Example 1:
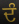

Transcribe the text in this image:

ਦੰ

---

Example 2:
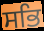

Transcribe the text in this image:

ਸਭਿ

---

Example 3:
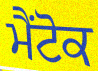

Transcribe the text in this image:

ਮੈਂਟੋਕ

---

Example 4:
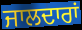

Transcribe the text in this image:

ਜਾਲਦਾਰਾਂ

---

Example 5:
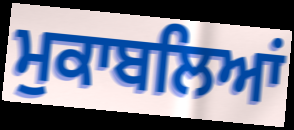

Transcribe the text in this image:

ਮੁਕਾਬਲਿਆਂ